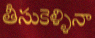
తీసుకెళ్ళినా